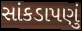
સાંકડાપણું